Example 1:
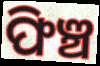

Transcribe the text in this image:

ଫିଞ୍ଚ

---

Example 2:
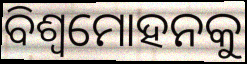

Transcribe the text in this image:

ବିଶ୍ଵମୋହନକୁ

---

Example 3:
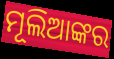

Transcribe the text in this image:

ମୂଲିଆଙ୍କର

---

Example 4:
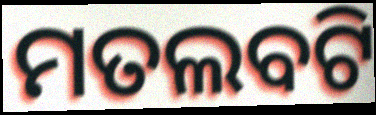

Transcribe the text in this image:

ମତଲବଟି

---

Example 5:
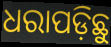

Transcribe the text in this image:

ଧରାପଡ଼ିଛୁ